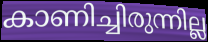
കാണിച്ചിരുന്നില്ല